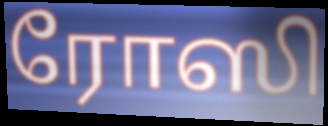
ரோஸி